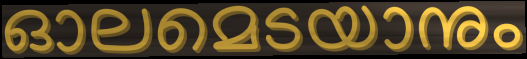
ഓലമെടയാനും